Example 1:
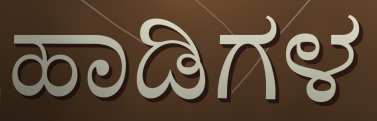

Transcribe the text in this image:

ಹಾಡಿಗಳ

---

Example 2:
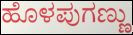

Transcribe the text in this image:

ಹೊಳಪುಗಣ್ಣು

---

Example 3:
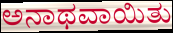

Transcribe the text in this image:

ಅನಾಥವಾಯಿತು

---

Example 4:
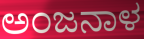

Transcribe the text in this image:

ಅಂಜನಾಳ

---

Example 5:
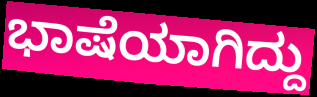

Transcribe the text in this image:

ಭಾಷೆಯಾಗಿದ್ದು